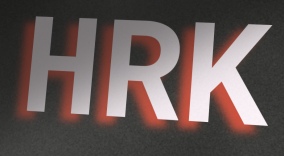
HRK